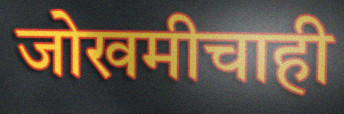
जोखमीचाही